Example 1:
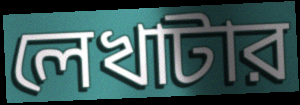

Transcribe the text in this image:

লেখাটার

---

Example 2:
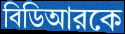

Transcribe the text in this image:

বিডিআরকে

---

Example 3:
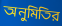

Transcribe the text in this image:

অনুমিতির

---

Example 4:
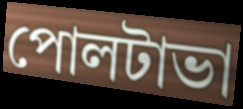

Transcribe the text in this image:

পোলটাভা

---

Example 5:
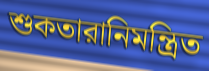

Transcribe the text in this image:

শুকতারানিমন্ত্রিত